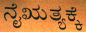
ನೈಋತ್ಯಕ್ಕೆ